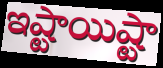
ఇష్టాయిష్టా